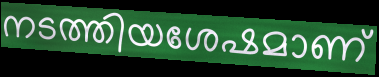
നടത്തിയശേഷമാണ്